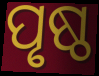
ପୃଷ୍ଠ